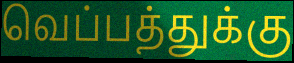
வெப்பத்துக்கு